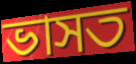
ভাসত